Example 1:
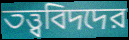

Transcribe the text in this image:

তত্ত্ববিদদের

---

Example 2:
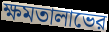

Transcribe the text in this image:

ক্ষমতালাভের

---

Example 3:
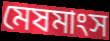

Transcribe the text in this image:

মেষমাংস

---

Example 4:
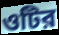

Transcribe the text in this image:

ওটির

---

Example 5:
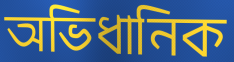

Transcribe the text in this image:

অভিধানিক